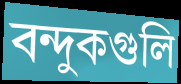
বন্দুকগুলি